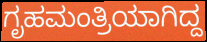
ಗೃಹಮಂತ್ರಿಯಾಗಿದ್ದ